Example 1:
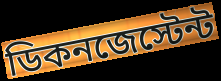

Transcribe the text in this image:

ডিকনজেস্টেন্ট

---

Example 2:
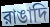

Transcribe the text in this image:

রাঙাদি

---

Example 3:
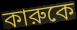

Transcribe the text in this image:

কারুকে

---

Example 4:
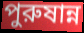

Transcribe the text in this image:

পুরুষান্ন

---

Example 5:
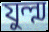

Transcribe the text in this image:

যুল্ম